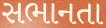
સભાનતા